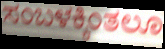
ಸಂಬಳಕ್ಕಿಂತಲೂ